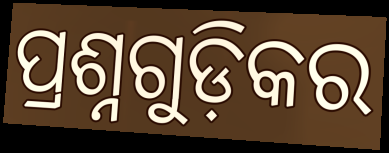
ପ୍ରଶ୍ନଗୁଡ଼ିକର